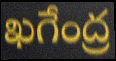
ఖగేంద్ర